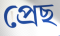
প্ৰেছ